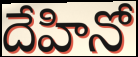
దేహినో